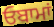
ਓਬਾਮਾਂ